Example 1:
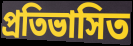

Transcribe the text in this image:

প্রতিভাসিত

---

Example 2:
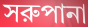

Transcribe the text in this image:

সরুপানা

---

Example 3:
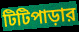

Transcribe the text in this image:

টিটিপাড়ার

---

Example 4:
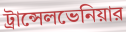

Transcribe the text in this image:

ট্রান্সেলভেনিয়ার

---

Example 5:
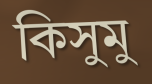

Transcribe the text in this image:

কিসুমু